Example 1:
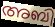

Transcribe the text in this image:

അബി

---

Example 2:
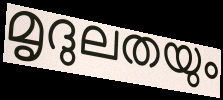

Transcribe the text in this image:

മൃദുലതയും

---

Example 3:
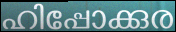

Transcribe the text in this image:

ഹിപ്പോക്കുര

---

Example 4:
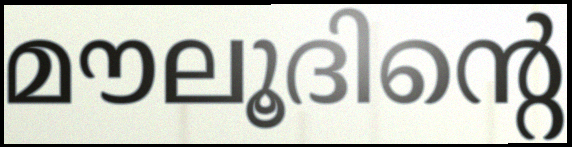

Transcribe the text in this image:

മൗലൂദിന്റെ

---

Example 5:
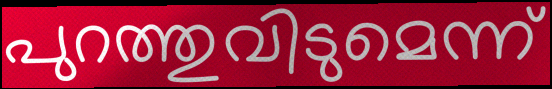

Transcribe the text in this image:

പുറത്തുവിടുമെന്ന്